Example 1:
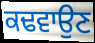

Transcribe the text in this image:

ਕਢਵਾਉਣ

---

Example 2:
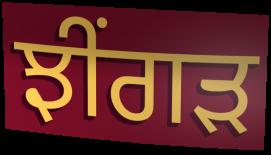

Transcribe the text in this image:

ਝੀਂਗੜ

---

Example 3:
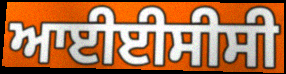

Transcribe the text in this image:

ਆਈਈਸੀਸੀ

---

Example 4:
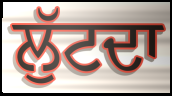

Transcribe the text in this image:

ਲੁੱਟਦਾ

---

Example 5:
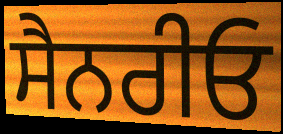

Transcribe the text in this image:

ਸੈਨਰੀਓ